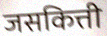
जसकित्ती